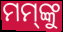
ମମ୍‌ଙ୍କୁ